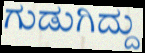
ಗುಡುಗಿದ್ದು